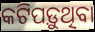
କଟିପଡ଼ୁଥିବା